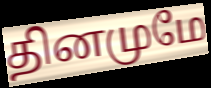
தினமுமே